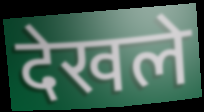
देखले